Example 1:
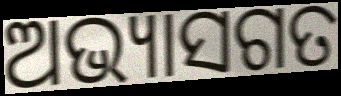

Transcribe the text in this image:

ଅଭ୍ଯାସଗତ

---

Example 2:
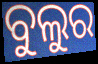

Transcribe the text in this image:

ବୁଲୁର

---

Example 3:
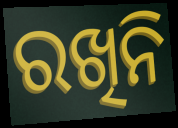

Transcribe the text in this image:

ରଖିନି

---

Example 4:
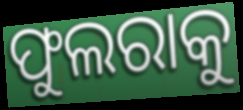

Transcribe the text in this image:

ଫୁଲରାକୁ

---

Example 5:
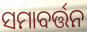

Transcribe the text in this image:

ସମାବର୍ତ୍ତନ